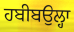
ਹਬੀਬਉਲ੍ਹਾ